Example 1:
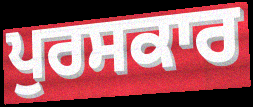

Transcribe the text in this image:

ਪੁਰਸਕਾਰ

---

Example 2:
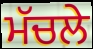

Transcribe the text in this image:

ਮੱਚਲੇ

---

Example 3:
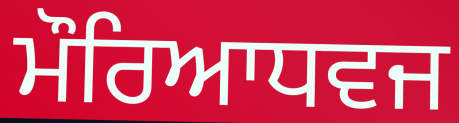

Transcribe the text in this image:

ਮੌਰਿਆਧਵਜ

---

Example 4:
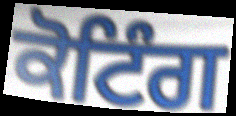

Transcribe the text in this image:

ਕੋਟਿੰਗ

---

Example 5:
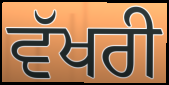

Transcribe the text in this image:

ਵੱਖਰੀ